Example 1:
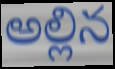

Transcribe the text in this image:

అల్లిన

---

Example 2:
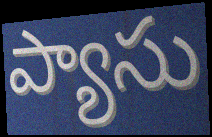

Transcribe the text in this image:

ప్యాసు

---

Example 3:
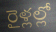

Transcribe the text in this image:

రైళ్లల్లో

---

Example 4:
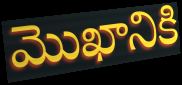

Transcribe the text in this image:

మొఖానికి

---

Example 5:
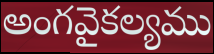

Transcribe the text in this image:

అంగవైకల్యము